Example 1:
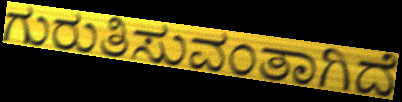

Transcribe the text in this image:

ಗುರುತಿಸುವಂತಾಗಿದೆ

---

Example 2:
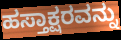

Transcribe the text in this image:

ಹಸ್ತಾಕ್ಷರವನ್ನು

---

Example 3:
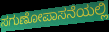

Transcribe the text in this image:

ಸಗುಣೋಪಾಸನೆಯಲ್ಲಿ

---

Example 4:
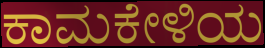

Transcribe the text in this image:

ಕಾಮಕೇಳಿಯ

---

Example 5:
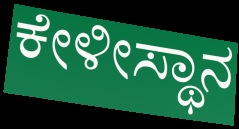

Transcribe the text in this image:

ಕೇಳೀಸ್ಥಾನ